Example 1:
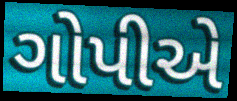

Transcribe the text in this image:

ગોપીએ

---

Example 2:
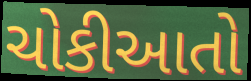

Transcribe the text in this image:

ચોકીઆતો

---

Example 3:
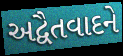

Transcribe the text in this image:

અદ્વૈતવાદને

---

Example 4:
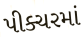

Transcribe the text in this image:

પીક્ચરમાં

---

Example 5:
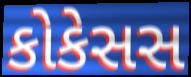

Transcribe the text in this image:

કોકેસસ